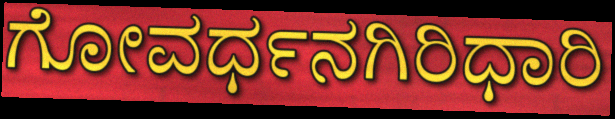
ಗೋವರ್ಧನಗಿರಿಧಾರಿ